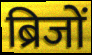
ब्रिजों